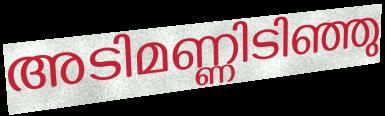
അടിമണ്ണിടിഞ്ഞു